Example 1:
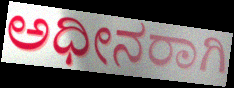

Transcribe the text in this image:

ಅಧೀನರಾಗಿ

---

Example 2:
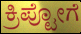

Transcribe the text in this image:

ಕ್ರಿಪ್ಟೋಗೆ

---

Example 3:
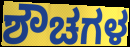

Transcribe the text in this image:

ಶೌಚಗಳ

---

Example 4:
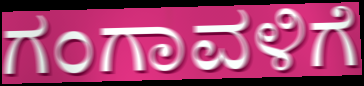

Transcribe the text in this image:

ಗಂಗಾವಳಿಗೆ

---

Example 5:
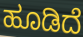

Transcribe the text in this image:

ಹೂಡಿದೆ